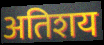
अतिशय